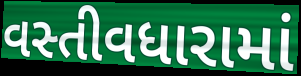
વસ્તીવધારામાં